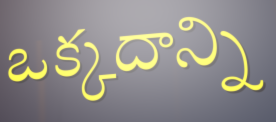
ఒక్కదాన్ని